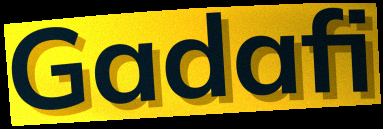
Gadafi